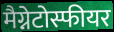
मैग्नेटोस्फीयर